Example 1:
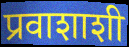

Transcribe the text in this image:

प्रवाशाशी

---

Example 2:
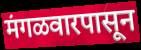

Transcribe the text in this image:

मंगळवारपासून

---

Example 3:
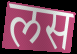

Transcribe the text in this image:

लस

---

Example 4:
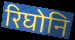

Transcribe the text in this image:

रिघोनि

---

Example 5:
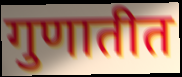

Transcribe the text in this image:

गुणातीत